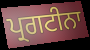
ਪ੍ਰਗਟੀਨਾ